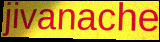
jivanache